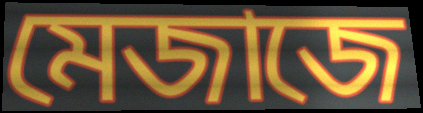
মেজাজে